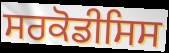
ਸਰਕੋਡੀਸਿਸ